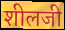
शीलजी